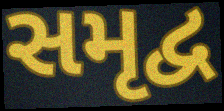
સમૃદ્વ